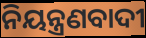
ନିୟନ୍ତ୍ରଣବାଦୀ